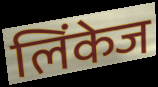
लिंकेज